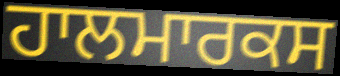
ਹਾਲਮਾਰਕਸ